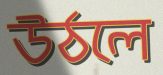
উঠলে